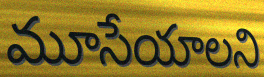
మూసేయాలని